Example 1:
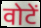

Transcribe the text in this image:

वोटें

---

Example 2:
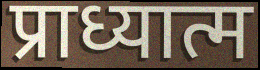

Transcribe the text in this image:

प्राध्यात्म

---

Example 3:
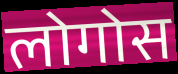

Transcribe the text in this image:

लोगोस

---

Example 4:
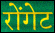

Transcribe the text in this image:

रोंगेट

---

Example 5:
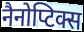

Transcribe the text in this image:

नैनोप्टिक्स